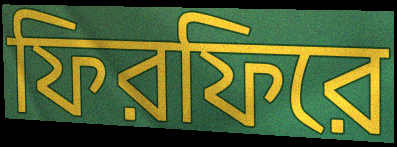
ফিরফিরে